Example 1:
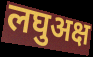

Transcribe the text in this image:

लघुअक्ष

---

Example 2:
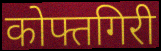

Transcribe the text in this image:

कोफ्तगिरी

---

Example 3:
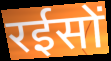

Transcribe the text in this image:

रईसों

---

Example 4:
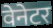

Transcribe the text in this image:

वेनेटर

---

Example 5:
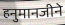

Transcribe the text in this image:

हनुमानजीने